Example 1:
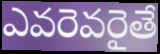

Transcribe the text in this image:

ఎవరెవరైతే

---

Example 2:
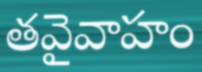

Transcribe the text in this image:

తవైవాహం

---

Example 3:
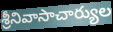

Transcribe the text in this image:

శ్రీనివాసాచార్యుల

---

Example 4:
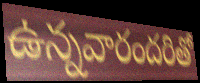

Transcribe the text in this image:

ఉన్నవారందరితో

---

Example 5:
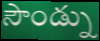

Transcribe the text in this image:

సౌండ్ను